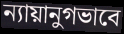
ন্যায়ানুগভাবে